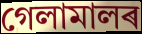
গেলামালৰ